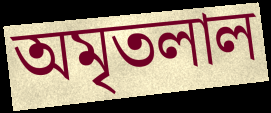
অমৃতলাল